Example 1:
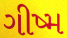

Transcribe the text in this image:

ગીષ્મ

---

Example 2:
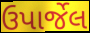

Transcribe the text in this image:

ઉપાર્જેલ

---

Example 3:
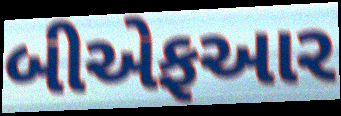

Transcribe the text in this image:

બીએફઆર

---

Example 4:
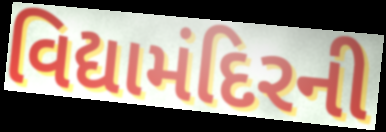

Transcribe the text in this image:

વિદ્યામંદિરની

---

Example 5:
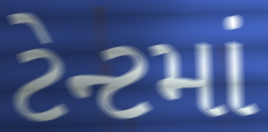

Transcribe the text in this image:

ટેન્ટમાં